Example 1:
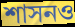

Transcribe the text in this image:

শাসনও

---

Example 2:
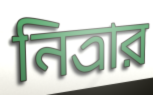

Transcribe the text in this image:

নিত্রার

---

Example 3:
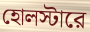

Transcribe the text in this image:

হোলস্টারে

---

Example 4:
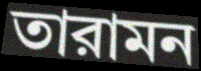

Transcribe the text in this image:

তারামন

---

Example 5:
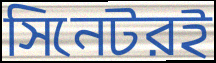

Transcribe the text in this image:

সিনেটরই